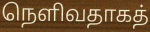
நெளிவதாகத்